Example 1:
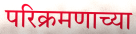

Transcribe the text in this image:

परिक्रमणाच्या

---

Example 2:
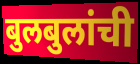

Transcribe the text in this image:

बुलबुलांची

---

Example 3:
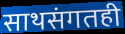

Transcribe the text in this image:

साथसंगतही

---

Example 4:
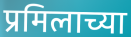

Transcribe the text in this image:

प्रमिलाच्या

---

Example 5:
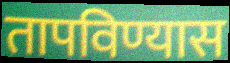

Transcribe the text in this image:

तापविण्यास